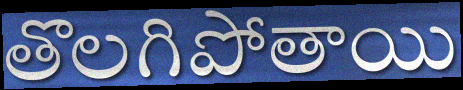
తొలగిపోతాయి